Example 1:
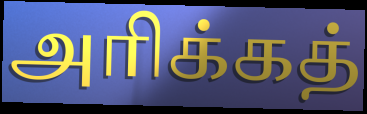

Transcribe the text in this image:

அரிக்கத்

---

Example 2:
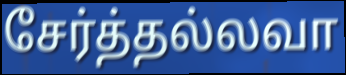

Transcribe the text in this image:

சேர்த்தல்லவா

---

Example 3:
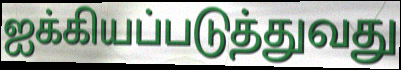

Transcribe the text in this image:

ஐக்கியப்படுத்துவது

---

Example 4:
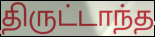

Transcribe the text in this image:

திருட்டாந்த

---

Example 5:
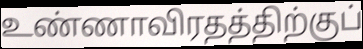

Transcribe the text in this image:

உண்ணாவிரதத்திற்குப்